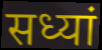
सध्यां